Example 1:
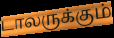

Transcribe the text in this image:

டாலருக்கும்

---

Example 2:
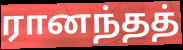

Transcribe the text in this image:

ரானந்தத்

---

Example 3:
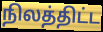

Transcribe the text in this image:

நிலத்திட்ட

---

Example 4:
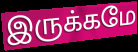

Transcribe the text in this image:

இருக்கமே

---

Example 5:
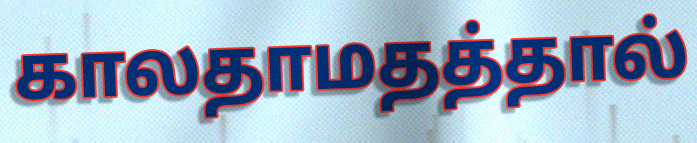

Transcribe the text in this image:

காலதாமதத்தால்